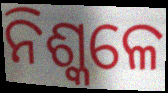
ନିଶ୍କଳେ